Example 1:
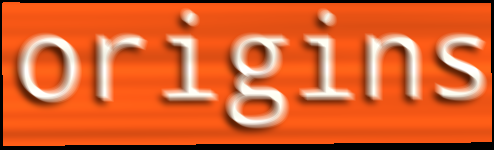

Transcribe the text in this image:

origins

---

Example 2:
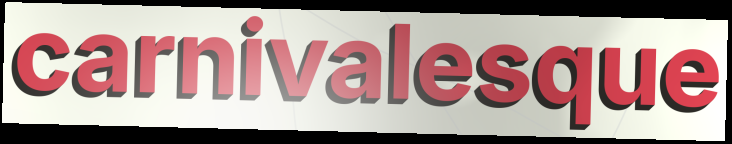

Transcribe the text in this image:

carnivalesque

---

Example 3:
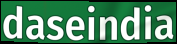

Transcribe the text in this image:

daseindia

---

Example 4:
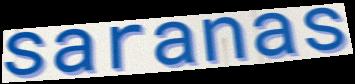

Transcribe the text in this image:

saranas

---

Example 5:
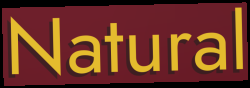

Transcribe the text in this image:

Natural